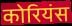
कोरियंस